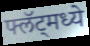
फ्लॅट्मध्ये